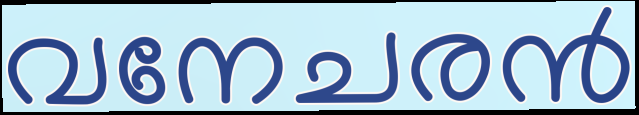
വനേചരൻ